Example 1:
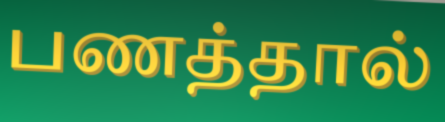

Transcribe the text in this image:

பணத்தால்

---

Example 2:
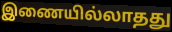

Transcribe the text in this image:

இணையில்லாதது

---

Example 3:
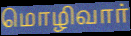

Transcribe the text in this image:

மொழிவார்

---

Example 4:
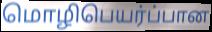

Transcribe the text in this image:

மொழிபெயர்ப்பான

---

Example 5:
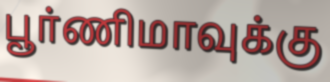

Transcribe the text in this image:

பூர்ணிமாவுக்கு